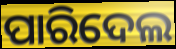
ପାରିଦେଲ